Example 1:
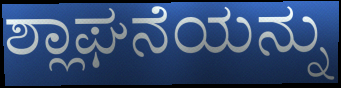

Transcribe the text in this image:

ಶ್ಲಾಘನೆಯನ್ನು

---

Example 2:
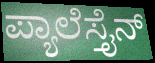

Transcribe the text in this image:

ಪ್ಯಾಲೆಸ್ತೈನ್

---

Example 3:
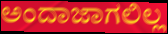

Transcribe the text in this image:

ಅಂದಾಜಾಗಲಿಲ್ಲ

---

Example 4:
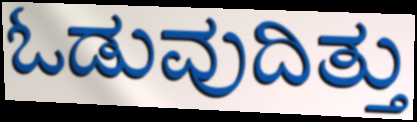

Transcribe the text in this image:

ಓಡುವುದಿತ್ತು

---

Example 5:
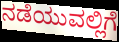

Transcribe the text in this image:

ನಡೆಯುವಲ್ಲಿಗೆ